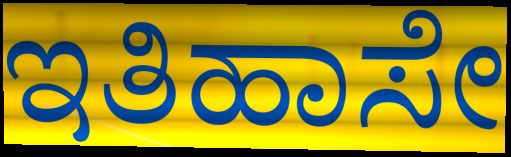
ಇತಿಹಾಸೇ